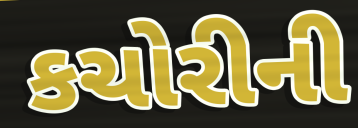
કચોરીની